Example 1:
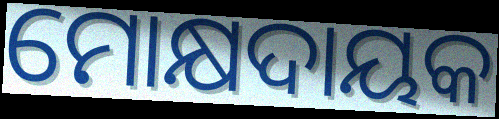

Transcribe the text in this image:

ମୋକ୍ଷଦାୟକ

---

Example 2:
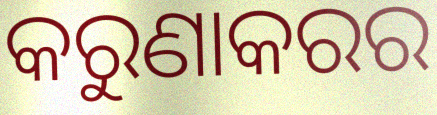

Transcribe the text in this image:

କରୁଣାକରର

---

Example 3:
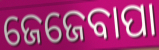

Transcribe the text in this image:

ଜେଜେବାପା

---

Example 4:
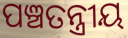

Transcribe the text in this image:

ପଞ୍ଚତନ୍ତ୍ରୀୟ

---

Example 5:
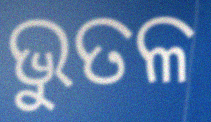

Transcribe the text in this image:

ଭୁତଳ